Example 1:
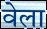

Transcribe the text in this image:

वेला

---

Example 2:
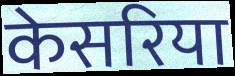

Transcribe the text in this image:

केसरिया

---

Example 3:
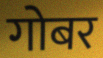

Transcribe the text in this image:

गोबर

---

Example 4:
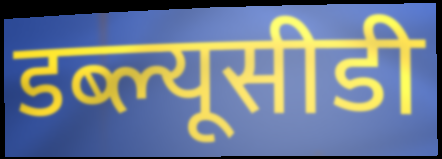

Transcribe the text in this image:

डब्ल्यूसीडी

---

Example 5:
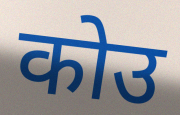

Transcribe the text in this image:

कोउ